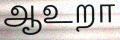
ஆஉறா